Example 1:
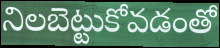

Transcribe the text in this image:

నిలబెట్టుకోవడంతో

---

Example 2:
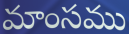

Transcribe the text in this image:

మాంసము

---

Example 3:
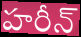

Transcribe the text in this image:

హరీన్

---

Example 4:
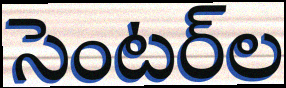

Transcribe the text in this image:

సెంటర్‌ల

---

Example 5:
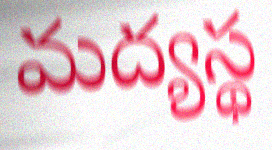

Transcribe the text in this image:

మద్యస్థ